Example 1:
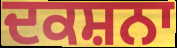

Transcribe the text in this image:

ਦਕਸ਼ਨਾ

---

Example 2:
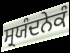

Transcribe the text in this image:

ਸ੍ਰਯੰਦਨੇਕੰ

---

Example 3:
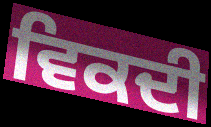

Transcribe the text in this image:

ਵਿਕਦੀ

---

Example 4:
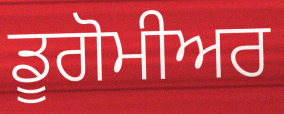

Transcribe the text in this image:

ਡੂਗੋਮੀਅਰ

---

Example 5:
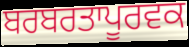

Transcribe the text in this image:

ਬਰਬਰਤਾਪੂਰਵਕ